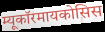
म्यूकॉरमायकोसिस